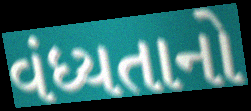
વંધ્યતાનો